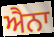
ਐਨਾ